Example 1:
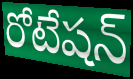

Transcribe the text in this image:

రోటేషన్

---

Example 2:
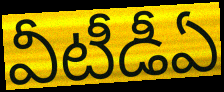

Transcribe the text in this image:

వీటీడీఏ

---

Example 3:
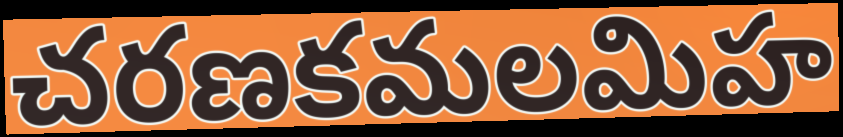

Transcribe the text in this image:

చరణకమలమిహ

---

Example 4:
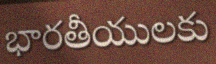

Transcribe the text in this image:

భారతీయులకు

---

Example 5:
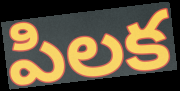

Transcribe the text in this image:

పిలక